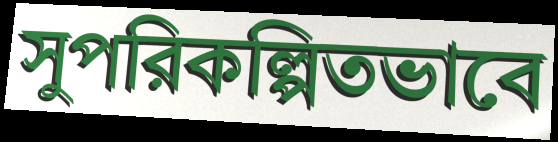
সুপরিকল্পিতভাবে